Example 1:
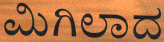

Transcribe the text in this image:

ಮಿಗಿಲಾದ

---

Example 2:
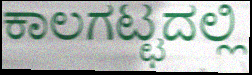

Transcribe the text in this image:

ಕಾಲಗಟ್ಟದಲ್ಲಿ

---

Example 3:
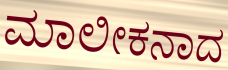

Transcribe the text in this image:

ಮಾಲೀಕನಾದ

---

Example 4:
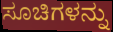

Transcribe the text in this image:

ಸೂಚಿಗಳನ್ನು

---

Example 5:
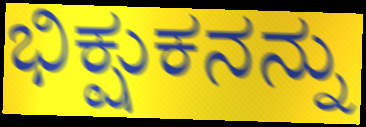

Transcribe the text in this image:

ಭಿಕ್ಷುಕನನ್ನು